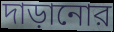
দাড়ানোর